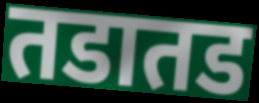
तडातड